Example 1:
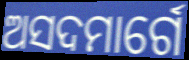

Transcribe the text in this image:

ଅସଦମାର୍ଗେ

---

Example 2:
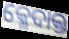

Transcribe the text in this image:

କ୍ଳେଦାକ୍ତ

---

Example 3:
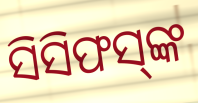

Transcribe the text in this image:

ସିସିଫସ୍‌ଙ୍କ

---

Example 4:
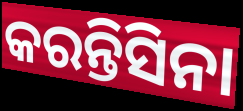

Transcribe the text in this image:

କରନ୍ତିସିନା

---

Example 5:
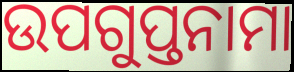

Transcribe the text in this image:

ଉପଗୁପ୍ତନାମା